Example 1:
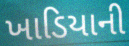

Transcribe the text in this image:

ખાડિયાની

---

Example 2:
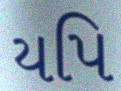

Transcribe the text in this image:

યપિ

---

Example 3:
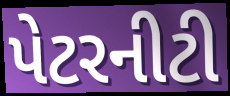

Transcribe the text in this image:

પેટરનીટી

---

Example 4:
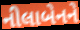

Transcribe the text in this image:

નીલાબેનને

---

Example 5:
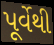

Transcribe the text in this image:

પૂર્વેથી